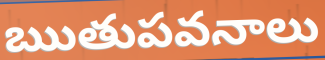
ఋతుపవనాలు